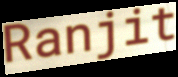
Ranjit